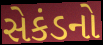
સેકંડનો